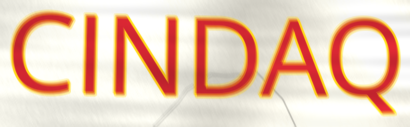
CINDAQ